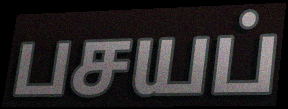
பசயப்